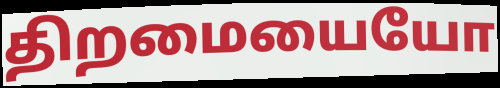
திறமையையோ